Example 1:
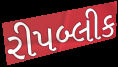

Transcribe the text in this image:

રીપબ્લીક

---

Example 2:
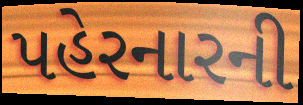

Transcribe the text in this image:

પહેરનારની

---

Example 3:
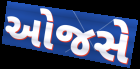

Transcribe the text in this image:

ઓજસે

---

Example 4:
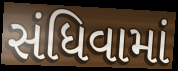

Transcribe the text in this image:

સંધિવામાં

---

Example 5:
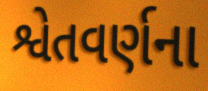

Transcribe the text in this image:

શ્વેતવર્ણના